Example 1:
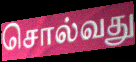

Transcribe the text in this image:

சொல்வது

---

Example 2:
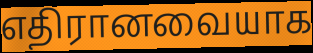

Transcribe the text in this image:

எதிரானவையாக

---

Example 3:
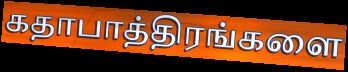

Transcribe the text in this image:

கதாபாத்திரங்களை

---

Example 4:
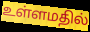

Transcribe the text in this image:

உள்ளமதில்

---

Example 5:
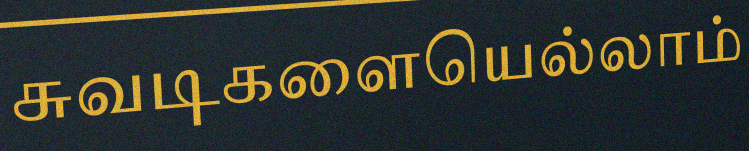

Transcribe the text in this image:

சுவடிகளையெல்லாம்